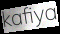
kafiya